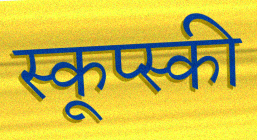
स्कूप्स्की